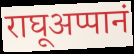
राघूअप्पानं